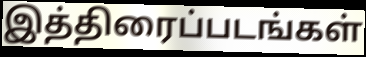
இத்திரைப்படங்கள்